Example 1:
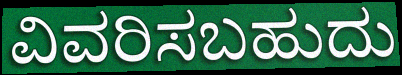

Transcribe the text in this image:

ವಿವರಿಸಬಹುದು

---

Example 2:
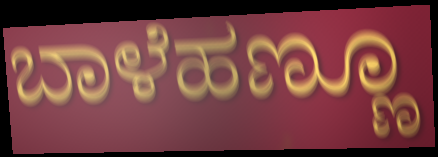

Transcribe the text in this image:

ಬಾಳೆಹಣ್ಣೂ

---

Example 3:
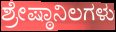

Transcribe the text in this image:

ಶ್ರೇಷ್ಠಾನಿಲಗಳು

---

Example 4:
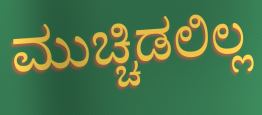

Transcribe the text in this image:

ಮುಚ್ಚಿಡಲಿಲ್ಲ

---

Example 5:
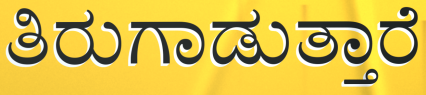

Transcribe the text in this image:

ತಿರುಗಾಡುತ್ತಾರೆ